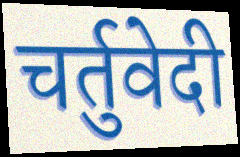
चर्तुवेदी